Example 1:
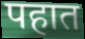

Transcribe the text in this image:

पहात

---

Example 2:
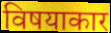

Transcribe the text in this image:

विषयाकार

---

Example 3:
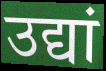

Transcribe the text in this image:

उद्यां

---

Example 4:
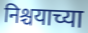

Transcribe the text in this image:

निश्चयाच्या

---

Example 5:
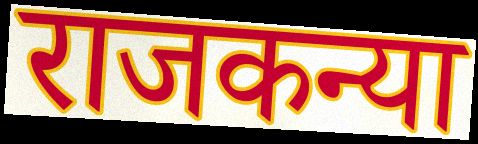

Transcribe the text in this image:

राजकन्या